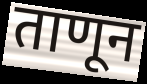
ताणून